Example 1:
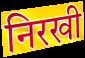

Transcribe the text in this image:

निरखी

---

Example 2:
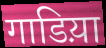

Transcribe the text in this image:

गाडिय़ा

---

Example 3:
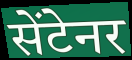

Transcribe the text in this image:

सेंटेनर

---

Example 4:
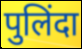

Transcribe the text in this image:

पुलिंदा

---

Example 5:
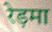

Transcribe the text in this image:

रेड़मा